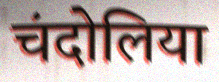
चंदोलिया